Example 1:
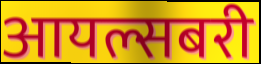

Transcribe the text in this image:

आयल्सबरी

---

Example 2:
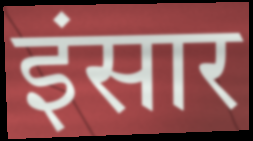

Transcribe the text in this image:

इंसार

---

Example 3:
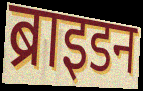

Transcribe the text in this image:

ब्राइडन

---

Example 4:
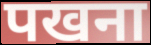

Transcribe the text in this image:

पखना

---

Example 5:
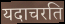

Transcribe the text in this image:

यदाचरति